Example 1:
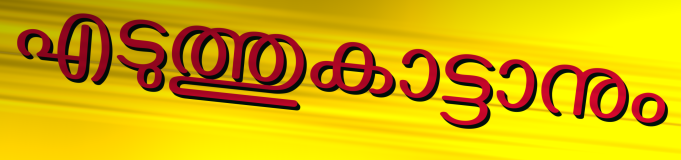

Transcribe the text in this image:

എടുത്തുകാട്ടാനും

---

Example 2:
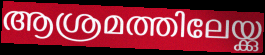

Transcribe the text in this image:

ആശ്രമത്തിലേയ്ക്കു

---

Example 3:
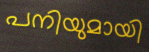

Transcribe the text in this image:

പനിയുമായി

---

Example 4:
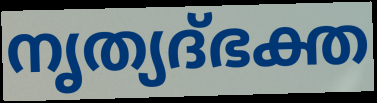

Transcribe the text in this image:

നൃത്യദ്ഭക്ത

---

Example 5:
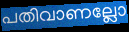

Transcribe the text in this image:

പതിവാണല്ലോ